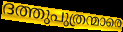
ദത്തുപുത്രന്മാരെ